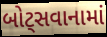
બોટ્સવાનામાં